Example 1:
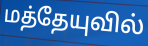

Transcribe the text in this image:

மத்தேயுவில்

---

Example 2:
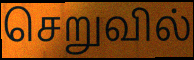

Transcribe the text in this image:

செறுவில்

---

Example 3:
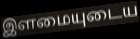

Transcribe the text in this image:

இளமையுடைய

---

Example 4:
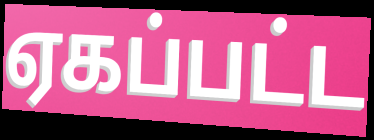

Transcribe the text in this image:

ஏகப்பட்ட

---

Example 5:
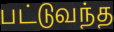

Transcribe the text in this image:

பட்டுவந்த